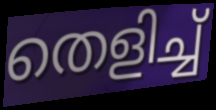
തെളിച്ച്